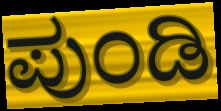
ಪುಂಡಿ